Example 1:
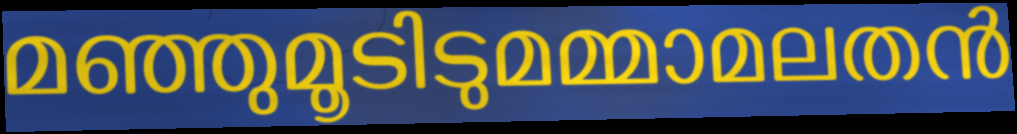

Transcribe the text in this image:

മഞ്ഞുമൂടിടുമമ്മാമലതൻ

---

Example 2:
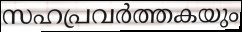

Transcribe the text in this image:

സഹപ്രവർത്തകയും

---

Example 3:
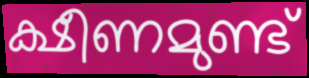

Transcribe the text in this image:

ക്ഷീണമുണ്ട്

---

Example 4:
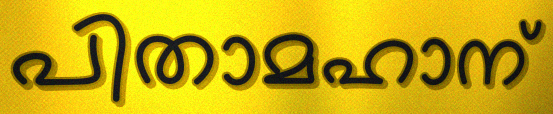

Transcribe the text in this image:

പിതാമഹാന്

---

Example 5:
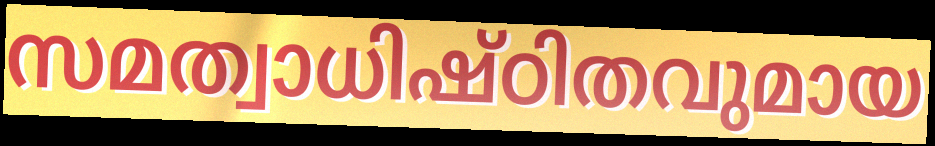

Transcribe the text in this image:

സമത്വാധിഷ്ഠിതവുമായ